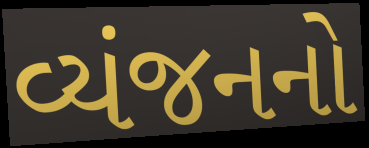
વ્યંજનનો